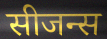
सीजन्स